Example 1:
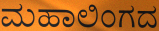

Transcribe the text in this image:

ಮಹಾಲಿಂಗದ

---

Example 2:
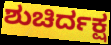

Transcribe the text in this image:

ಶುಚಿರ್ದಕ್ಷ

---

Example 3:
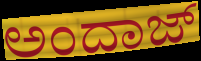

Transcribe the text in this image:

ಅಂದಾಜ್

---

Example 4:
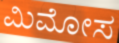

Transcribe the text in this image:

ಮಿಮೋಸ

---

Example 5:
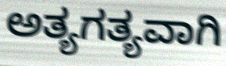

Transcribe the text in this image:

ಅತ್ಯಗತ್ಯವಾಗಿ